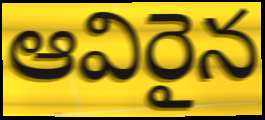
ఆవిరైన